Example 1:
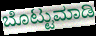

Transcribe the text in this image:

ಬೊಟ್ಟುಮಾಡಿ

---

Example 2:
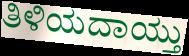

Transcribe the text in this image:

ತಿಳಿಯದಾಯ್ತು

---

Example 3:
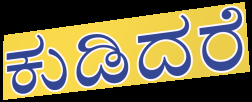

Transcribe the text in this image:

ಕುಡಿದರೆ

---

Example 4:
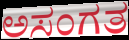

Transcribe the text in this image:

ಅಸಂಗತ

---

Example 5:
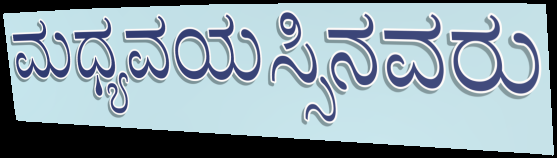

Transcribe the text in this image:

ಮಧ್ಯವಯಸ್ಸಿನವರು